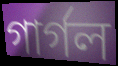
গার্গল